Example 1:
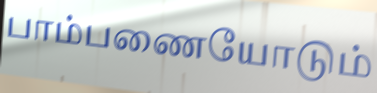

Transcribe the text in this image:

பாம்பணையோடும்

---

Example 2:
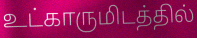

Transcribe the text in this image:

உட்காருமிடத்தில்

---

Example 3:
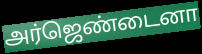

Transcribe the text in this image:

அர்ஜெண்டைனா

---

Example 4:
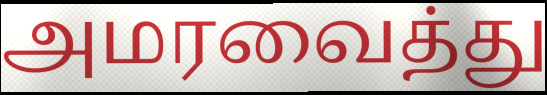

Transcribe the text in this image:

அமரவைத்து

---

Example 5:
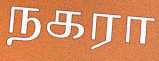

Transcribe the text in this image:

நகரா